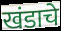
खंडाचे